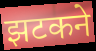
झटकने